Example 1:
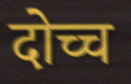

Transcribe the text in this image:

दोच्च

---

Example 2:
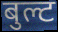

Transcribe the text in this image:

बुल्ट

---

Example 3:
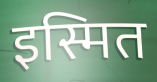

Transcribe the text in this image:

इस्मित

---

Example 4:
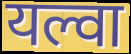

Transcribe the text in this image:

यल्वा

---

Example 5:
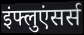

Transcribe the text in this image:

इंफ्लुएंसर्स